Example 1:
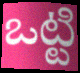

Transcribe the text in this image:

ఒట్టి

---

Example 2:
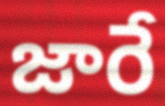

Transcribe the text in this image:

జారే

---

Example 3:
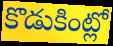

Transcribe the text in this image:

కొడుకింట్లో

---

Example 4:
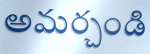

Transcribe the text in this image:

అమర్చండి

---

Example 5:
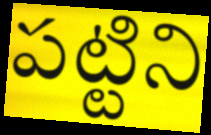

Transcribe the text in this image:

పట్టిని